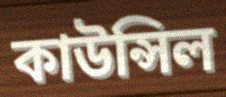
কাউন্সিল